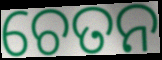
ଚେତନ